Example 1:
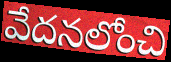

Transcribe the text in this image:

వేదనలోంచి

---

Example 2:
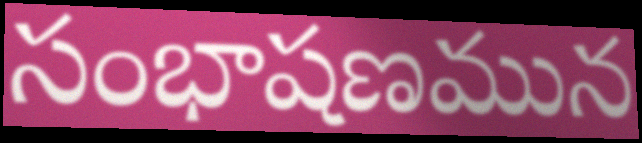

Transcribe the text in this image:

సంభాషణమున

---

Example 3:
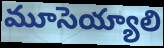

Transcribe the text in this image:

మూసెయ్యాలి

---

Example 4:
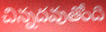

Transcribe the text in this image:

చిన్నదవుతోంది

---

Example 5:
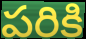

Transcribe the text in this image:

పరికి